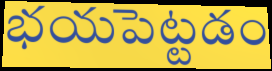
భయపెట్టడం